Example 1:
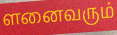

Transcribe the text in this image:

ளனைவரும்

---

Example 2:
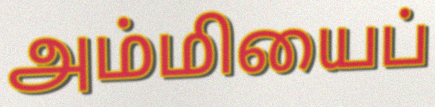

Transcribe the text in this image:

அம்மியைப்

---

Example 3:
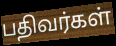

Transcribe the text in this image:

பதிவர்கள்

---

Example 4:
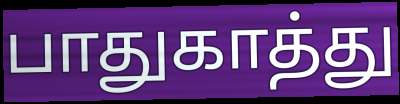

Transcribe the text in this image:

பாதுகாத்து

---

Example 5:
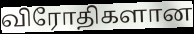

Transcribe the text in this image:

விரோதிகளான